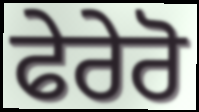
ਫੇਰੇਰੋ